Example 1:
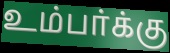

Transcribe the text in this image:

உம்பர்க்கு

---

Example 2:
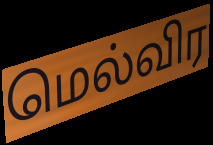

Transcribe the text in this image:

மெல்விர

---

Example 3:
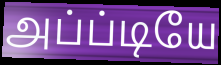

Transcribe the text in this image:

அப்ப்டியே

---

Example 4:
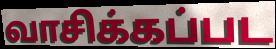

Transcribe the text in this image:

வாசிக்கப்பட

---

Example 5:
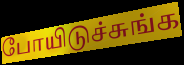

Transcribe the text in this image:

போயிடுச்சுங்க